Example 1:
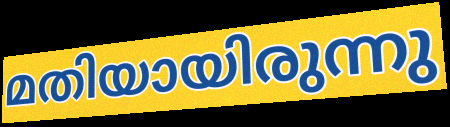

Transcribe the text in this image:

മതിയായിരുന്നു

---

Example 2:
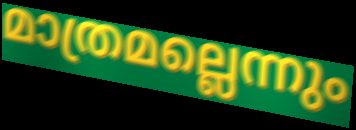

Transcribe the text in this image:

മാത്രമല്ലെന്നും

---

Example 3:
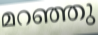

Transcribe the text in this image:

മറഞ്ഞു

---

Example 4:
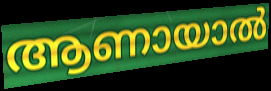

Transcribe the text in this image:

ആണായാൽ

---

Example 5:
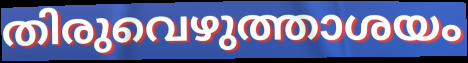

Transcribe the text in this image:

തിരുവെഴുത്താശയം